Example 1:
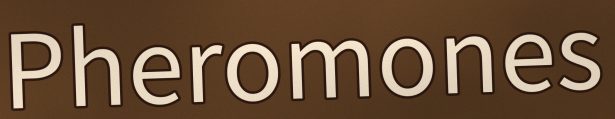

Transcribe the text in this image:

Pheromones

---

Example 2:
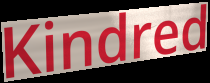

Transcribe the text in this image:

Kindred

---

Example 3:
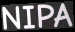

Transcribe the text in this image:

NIPA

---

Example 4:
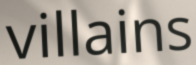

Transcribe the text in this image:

villains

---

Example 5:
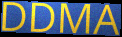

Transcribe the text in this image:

DDMA